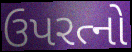
ઉપરત્નો